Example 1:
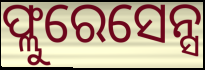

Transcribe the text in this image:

ଫ୍ଲୁରେସେନ୍ସ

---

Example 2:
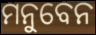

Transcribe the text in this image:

ମନୁବେନ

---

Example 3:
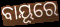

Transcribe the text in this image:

ବାୟୂରେ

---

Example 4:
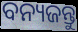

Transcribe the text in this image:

ବନ୍ୟଜନ୍ତୁ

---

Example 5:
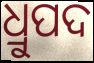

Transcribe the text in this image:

ଧ୍ରୁପଦ